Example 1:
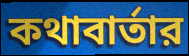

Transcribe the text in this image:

কথাবার্তার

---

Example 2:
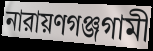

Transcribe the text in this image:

নারায়ণগঞ্জগামী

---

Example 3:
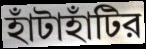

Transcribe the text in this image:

হাঁটাহাঁটির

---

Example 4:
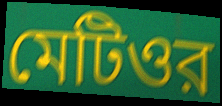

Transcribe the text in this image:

মেটিওর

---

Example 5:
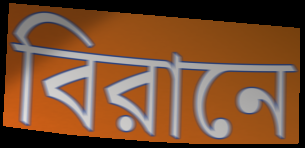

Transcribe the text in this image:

বিরানে